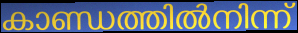
കാണ്ഡത്തിൽനിന്ന്